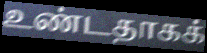
உண்டதாகக்